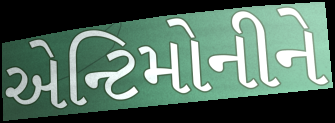
એન્ટિમોનીને